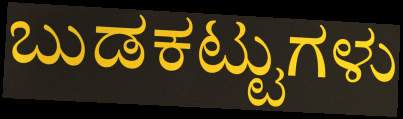
ಬುಡಕಟ್ಟುಗಳು